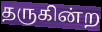
தருகின்ற